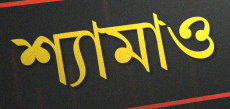
শ্যামাও